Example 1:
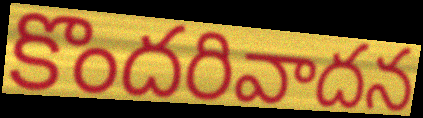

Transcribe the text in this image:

కొందరివాదన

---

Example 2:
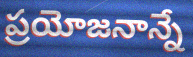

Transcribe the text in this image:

ప్రయోజనాన్నే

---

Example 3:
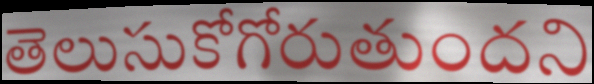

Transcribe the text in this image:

తెలుసుకోగోరుతుందని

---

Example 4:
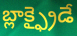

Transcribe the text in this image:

బ్లాక్ఫ్రైడే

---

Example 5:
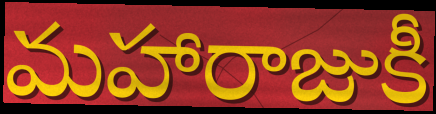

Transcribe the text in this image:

మహారాజుకీ